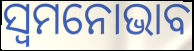
ସ୍ୱମନୋଭାବ